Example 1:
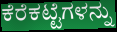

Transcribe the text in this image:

ಕೆರೆಕಟ್ಟೆಗಳನ್ನು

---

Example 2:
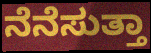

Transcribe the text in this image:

ನೆನೆಸುತ್ತಾ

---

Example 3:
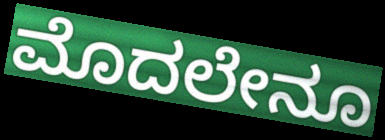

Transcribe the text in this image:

ಮೊದಲೇನೂ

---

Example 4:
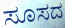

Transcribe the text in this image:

ಸೂಸದ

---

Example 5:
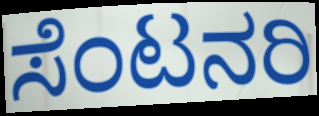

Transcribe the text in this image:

ಸೆಂಟನರಿ